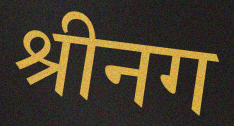
श्रीनग